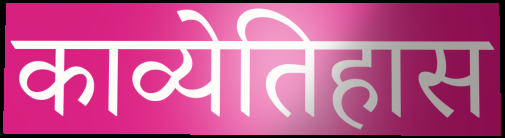
काव्येतिहास